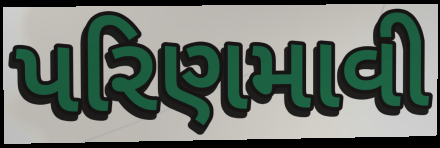
પરિણમાવી